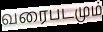
வரைபடமும்